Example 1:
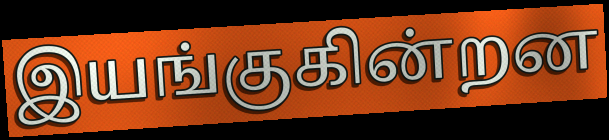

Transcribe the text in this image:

இயங்குகின்றன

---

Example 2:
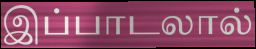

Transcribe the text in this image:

இப்பாடலால்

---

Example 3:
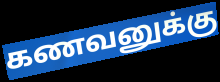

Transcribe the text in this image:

கணவனுக்கு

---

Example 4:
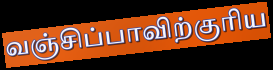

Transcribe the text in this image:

வஞ்சிப்பாவிற்குரிய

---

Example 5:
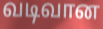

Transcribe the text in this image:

வடிவான